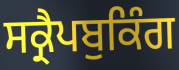
ਸਕ੍ਰੈਪਬੁਕਿੰਗ